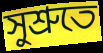
সুশ্ৰুতে